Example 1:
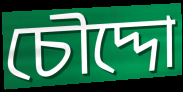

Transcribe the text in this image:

চৌদ্দো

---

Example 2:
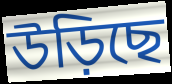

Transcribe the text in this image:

উড়িছে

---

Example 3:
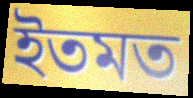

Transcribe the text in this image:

ইতমত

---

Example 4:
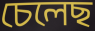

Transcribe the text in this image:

চেলেছ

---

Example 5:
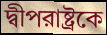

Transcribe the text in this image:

দ্বীপরাষ্ট্রকে